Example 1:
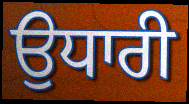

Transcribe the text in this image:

ਉਧਾਰੀ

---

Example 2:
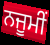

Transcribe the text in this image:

ਨਜੂਮੀਂ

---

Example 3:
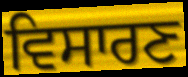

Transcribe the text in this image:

ਵਿਸਾਰਣ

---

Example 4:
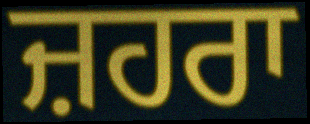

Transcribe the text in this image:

ਜ਼ਹਰਾ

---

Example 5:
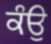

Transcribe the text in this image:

ਕੰਉ